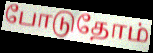
போடுதோம்